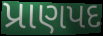
પ્રાણપદ